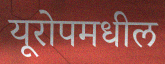
यूरोपमधील